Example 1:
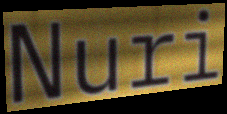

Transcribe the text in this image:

Nuri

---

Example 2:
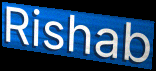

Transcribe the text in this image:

Rishab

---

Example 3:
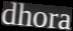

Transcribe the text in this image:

dhora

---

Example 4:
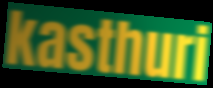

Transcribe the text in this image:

kasthuri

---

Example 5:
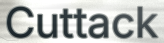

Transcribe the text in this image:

Cuttack